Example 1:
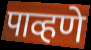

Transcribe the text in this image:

पाव्हणे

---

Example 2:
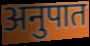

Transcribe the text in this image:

अनुपात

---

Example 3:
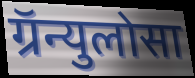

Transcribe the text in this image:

ग्रॅन्युलोसा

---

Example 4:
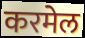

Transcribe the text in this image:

करमेल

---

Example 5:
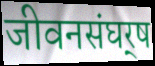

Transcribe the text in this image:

जीवनसंघर्ष